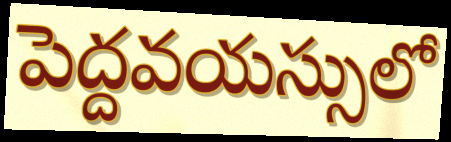
పెద్దవయస్సులో